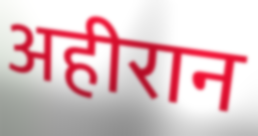
अहीरान